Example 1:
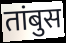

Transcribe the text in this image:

तांबुस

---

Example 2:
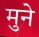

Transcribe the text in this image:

मुने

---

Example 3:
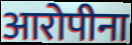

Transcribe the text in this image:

आरोपीना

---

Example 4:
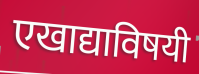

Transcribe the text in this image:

एखाद्याविषयी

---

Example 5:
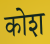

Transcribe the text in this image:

कोश